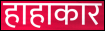
हाहाकार